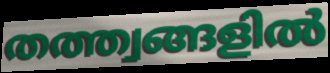
തത്ത്വങ്ങളിൽ